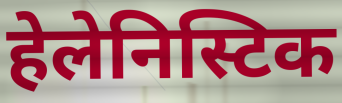
हेलेनिस्टिक